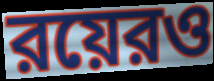
রয়েরও